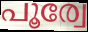
പൂര്വേ